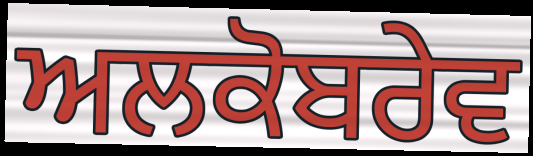
ਅਲਕੋਬਰੇਵ